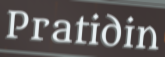
Pratidin